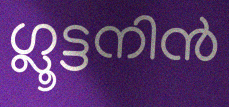
ഗ്ലൂട്ടനിൻ